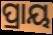
ପ୍ରାୟ